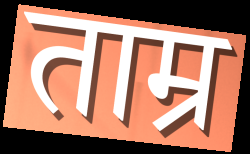
ताम्र